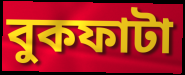
বুকফাটা